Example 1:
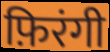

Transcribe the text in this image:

फ़िरंगी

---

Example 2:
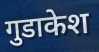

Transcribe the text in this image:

गुडाकेश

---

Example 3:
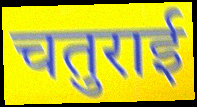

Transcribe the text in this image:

चतुराई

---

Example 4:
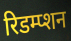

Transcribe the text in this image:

रिडम्प्शन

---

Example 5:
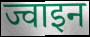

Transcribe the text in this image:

ज्वाइन